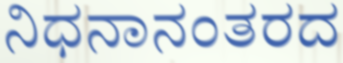
ನಿಧನಾನಂತರದ